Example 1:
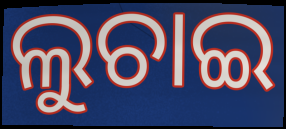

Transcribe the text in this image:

ଲୁଚାଇ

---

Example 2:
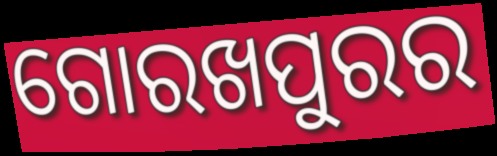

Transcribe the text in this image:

ଗୋରଖପୁରର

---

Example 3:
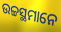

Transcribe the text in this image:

ଉଚ୍ଚସ୍ଥମାନେ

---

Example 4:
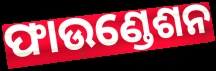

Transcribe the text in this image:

ଫାଉଣ୍ଡେଶନ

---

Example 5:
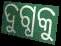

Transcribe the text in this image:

ଦୁଗ୍ଧକୁ